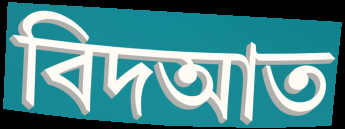
বিদআত